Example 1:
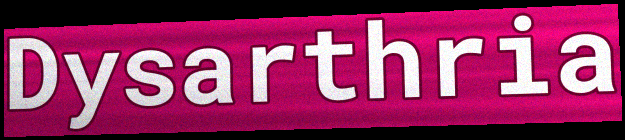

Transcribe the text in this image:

Dysarthria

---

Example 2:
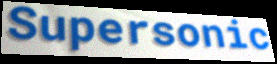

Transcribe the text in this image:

Supersonic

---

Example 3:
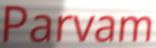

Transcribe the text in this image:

Parvam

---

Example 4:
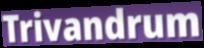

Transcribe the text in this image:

Trivandrum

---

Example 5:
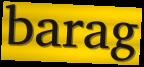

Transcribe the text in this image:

barag